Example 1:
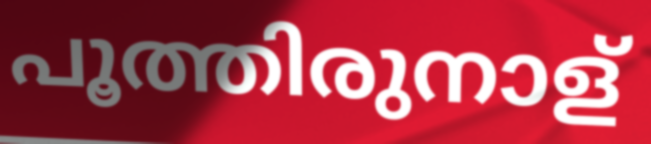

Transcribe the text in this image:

പൂത്തിരുനാള്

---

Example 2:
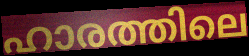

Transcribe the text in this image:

ഹാരത്തിലെ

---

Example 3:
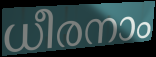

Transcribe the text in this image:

ധീരനാം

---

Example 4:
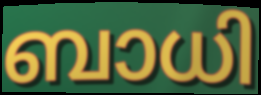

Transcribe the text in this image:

ബാധി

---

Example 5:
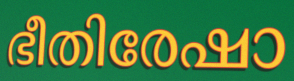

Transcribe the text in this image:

ഭീതിരേഷാ